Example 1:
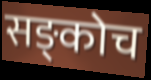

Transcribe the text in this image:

सङ्कोच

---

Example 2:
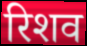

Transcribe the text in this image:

रिशव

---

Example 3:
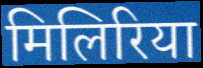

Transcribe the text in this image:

मिलिरिया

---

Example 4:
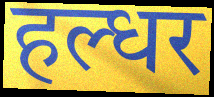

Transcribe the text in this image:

हल्धर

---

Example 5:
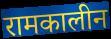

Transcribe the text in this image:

रामकालीन